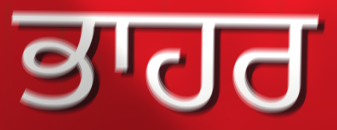
ਭਾਹਰ